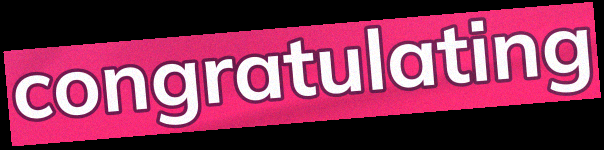
congratulating